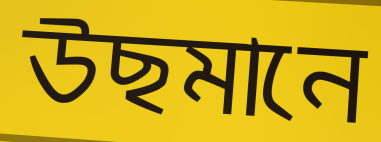
উছমানে